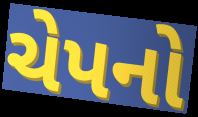
ચેપનો